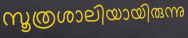
സൂത്രശാലിയായിരുന്നു